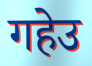
गहेउ